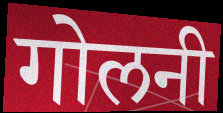
गोलनी